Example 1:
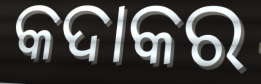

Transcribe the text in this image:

କଦାକର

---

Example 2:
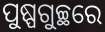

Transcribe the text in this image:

ପୁଷ୍ପଗୁଚ୍ଛରେ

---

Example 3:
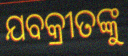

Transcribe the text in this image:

ଯବକ୍ରୀତଙ୍କୁ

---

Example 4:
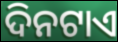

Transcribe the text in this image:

ଦିନଟାଏ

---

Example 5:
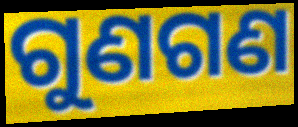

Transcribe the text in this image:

ଗୁଣଗଣ